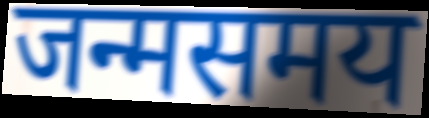
जन्मसमय